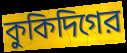
কুকিদিগের